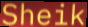
Sheik